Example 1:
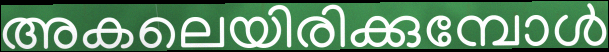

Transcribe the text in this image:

അകലെയിരിക്കുമ്പോൾ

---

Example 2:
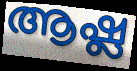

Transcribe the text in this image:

ആഷ്ല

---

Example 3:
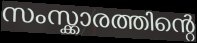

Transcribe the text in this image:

സംസ്ക്കാരത്തിന്റെ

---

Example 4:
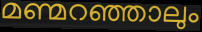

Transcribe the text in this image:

മണ്മറഞ്ഞാലും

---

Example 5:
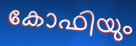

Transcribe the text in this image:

കോഫിയും